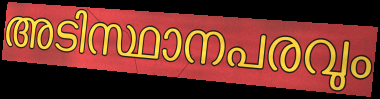
അടിസ്ഥാനപരവും